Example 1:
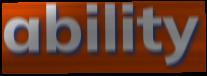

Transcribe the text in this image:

ability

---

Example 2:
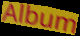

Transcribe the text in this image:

Album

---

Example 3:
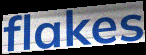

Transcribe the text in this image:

flakes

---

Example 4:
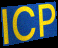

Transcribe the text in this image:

ICP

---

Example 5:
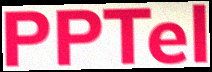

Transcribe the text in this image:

PPTel